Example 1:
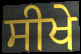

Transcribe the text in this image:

ਸੀਖੇ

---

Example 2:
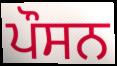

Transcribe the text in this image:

ਪੌਸਨ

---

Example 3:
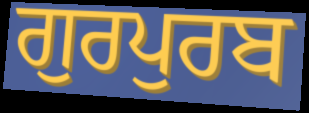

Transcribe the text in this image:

ਗੁਰਪੁਰਬ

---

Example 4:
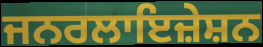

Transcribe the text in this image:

ਜਨਰਲਾਇਜ਼ੇਸ਼ਨ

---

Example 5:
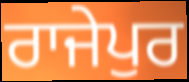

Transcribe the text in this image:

ਰਾਜੇਪੁਰ